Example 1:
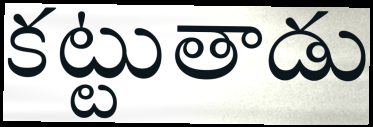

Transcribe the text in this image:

కట్టుతాడు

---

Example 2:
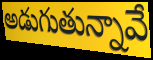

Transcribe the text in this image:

అడుగుతున్నావే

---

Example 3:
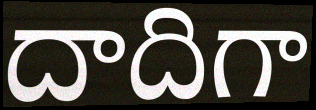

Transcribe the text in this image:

దాదిగా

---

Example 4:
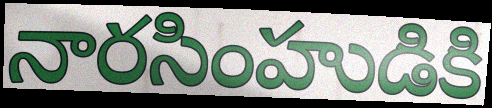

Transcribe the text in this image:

నారసింహుడికి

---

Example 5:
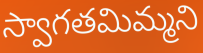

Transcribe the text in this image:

స్వాగతమిమ్మని